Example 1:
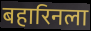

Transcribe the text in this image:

बहारिनला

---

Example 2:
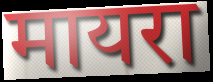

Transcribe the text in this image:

मायरा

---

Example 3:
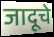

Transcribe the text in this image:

जादूचे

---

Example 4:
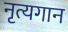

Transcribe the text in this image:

नृत्यगान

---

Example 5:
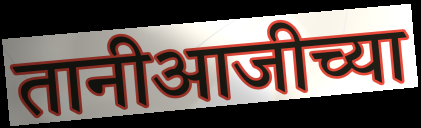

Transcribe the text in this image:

तानीआजीच्या